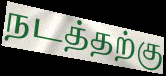
நடத்தற்கு